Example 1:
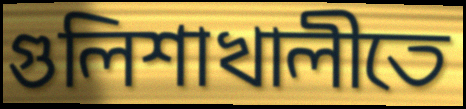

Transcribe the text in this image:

গুলিশাখালীতে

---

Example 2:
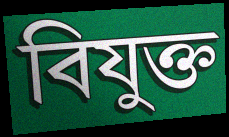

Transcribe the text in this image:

বিযুক্ত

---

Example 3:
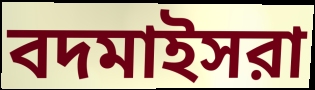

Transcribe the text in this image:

বদমাইসরা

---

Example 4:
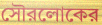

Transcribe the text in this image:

সৌরলোকের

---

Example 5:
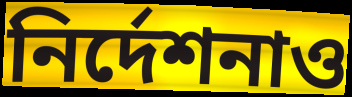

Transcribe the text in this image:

নির্দেশনাও